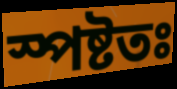
স্পষ্টতঃ